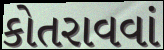
કોતરાવવાં